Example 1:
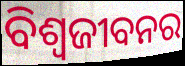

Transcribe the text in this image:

ବିଶ୍ଵଜୀବନର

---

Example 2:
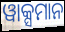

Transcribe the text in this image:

ୱାକ୍ସମାନ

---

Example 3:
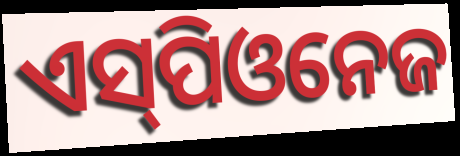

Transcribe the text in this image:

ଏସ୍‌ପିଓନେଜ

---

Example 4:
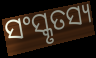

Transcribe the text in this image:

ସଂସ୍କୃତସ୍ୟ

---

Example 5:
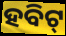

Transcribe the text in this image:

ହବିଟ୍